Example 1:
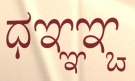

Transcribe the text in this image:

ಧಞ್ಞಞ್ಚ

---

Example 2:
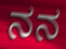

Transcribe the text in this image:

ನನ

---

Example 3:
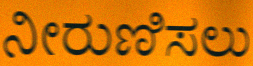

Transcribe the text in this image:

ನೀರುಣಿಸಲು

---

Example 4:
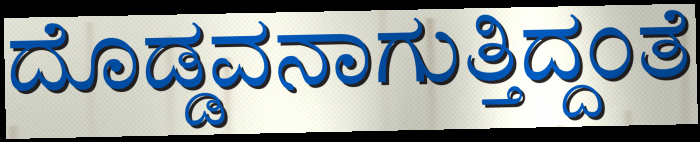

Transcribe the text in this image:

ದೊಡ್ಡವನಾಗುತ್ತಿದ್ದಂತೆ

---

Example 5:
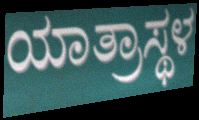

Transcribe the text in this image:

ಯಾತ್ರಾಸ್ಥಳ